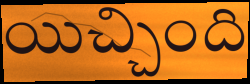
యిచ్చింది